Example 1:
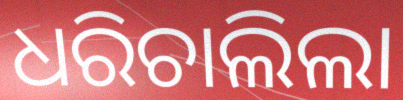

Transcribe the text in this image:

ଧରିଚାଲିଲା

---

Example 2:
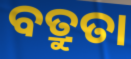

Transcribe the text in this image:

ବତ୍ରୁତା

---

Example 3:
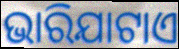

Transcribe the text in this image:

ଭାରିଯାଟାଏ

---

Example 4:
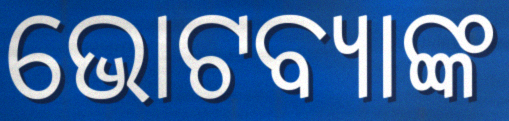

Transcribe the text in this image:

ଭୋଟବ୍ୟାଙ୍କ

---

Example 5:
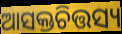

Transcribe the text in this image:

ଆସକ୍ତଚିତ୍ତସ୍ୟ